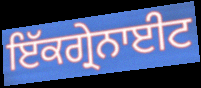
ਇੱਕਗ੍ਰੇਨਾਈਟ